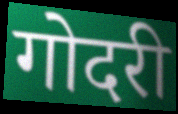
गोदरी